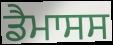
ਡੈਮਾਸਸ